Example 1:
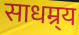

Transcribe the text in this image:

साधम्र्य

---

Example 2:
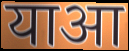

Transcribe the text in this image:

याआ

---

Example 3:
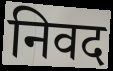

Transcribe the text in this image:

निवद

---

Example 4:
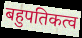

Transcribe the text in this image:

बहुपतिकत्व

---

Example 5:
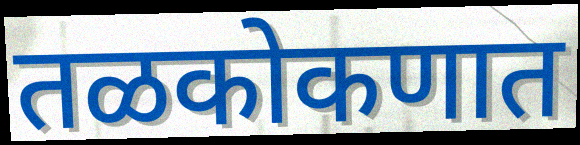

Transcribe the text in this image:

तळकोकणात